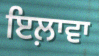
ਇਲ਼ਾਵਾ